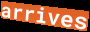
arrives